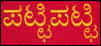
ಪಟ್ಟಿಪಟ್ಟಿ